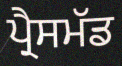
ਪ੍ਰੈਸਮੱਡ